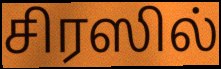
சிரஸில்